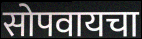
सोपवायचा